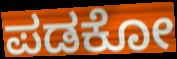
ಪಡಕೋ